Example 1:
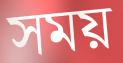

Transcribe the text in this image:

সময়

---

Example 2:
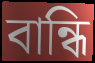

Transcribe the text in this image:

বান্ধি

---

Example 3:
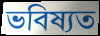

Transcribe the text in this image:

ভবিষ্যত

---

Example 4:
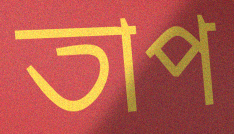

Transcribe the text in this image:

তাপ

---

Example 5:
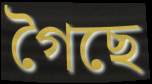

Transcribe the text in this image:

গৈছে